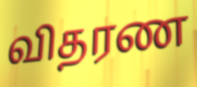
விதரண